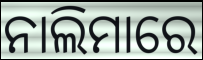
ନାଲିମାରେ